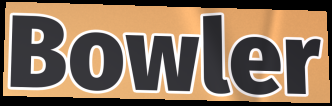
Bowler